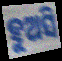
ହୁଅସି